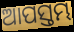
ଆପସ୍ତମ୍ଭ